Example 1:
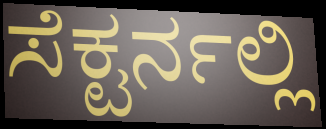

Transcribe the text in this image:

ಸೆಕ್ಟರ್ನಲ್ಲಿ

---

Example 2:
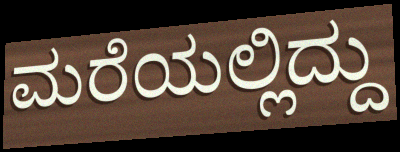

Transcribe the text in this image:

ಮರೆಯಲ್ಲಿದ್ದು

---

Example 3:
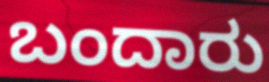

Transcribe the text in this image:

ಬಂದಾರು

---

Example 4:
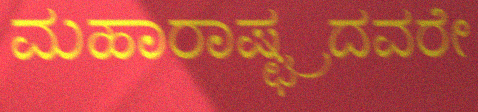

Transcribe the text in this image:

ಮಹಾರಾಷ್ಟ್ರದವರೇ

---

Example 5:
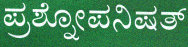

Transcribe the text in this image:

ಪ್ರಶ್ನೋಪನಿಷತ್